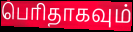
பெரிதாகவும்